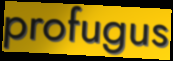
profugus